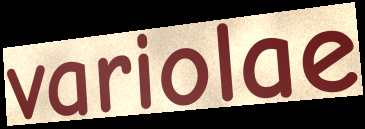
variolae